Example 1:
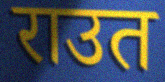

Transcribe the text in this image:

राउत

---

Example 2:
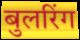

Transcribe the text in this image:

बुलरिंग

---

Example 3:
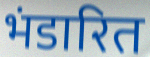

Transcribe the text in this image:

भंडारित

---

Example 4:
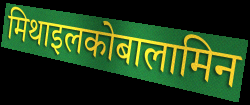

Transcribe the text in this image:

मिथाइलकोबालामिन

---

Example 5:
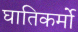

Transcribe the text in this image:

घातिकर्मो